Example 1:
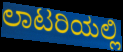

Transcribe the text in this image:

ಲಾಟರಿಯಲ್ಲಿ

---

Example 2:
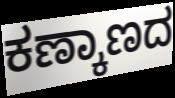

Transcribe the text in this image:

ಕಣ್ಕಾಣದ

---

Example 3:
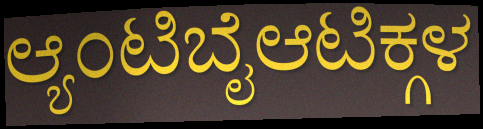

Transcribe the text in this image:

ಆ್ಯಂಟಿಬೈಆಟಿಕ್ಗಳ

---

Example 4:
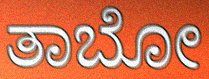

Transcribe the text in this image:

ತಾಬೋ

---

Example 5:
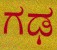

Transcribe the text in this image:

ಗಢ